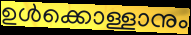
ഉൾക്കൊള്ളാനും